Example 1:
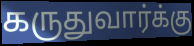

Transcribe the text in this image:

கருதுவார்க்கு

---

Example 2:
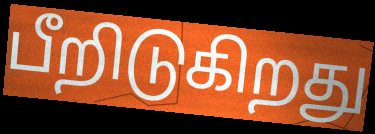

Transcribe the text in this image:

பீறிடுகிறது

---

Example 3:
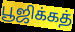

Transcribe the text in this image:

பூஜிக்கத்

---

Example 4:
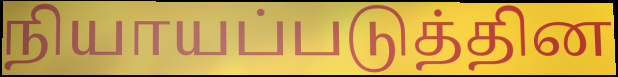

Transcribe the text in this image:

நியாயப்படுத்தின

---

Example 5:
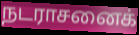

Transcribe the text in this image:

நடராசனைக்